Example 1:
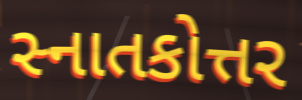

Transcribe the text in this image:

સ્નાતકોત્તર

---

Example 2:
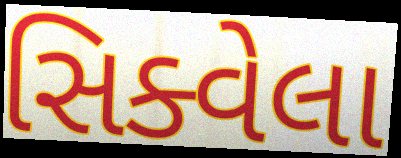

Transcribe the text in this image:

સિક્વેલા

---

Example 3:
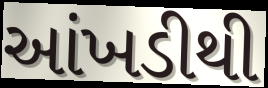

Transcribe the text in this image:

આંખડીથી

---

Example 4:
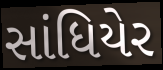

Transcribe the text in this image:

સાંધિયેર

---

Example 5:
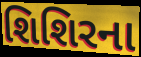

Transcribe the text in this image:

શિશિરના